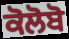
ਕੋਲੋਬੋ